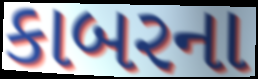
કાબરના